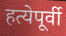
हत्येपूर्वी